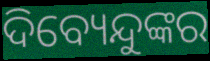
ଦିବ୍ୟେନ୍ଦୁଙ୍କର